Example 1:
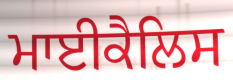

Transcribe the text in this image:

ਮਾਈਕੈਲਿਸ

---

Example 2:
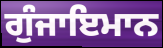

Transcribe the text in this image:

ਗੁੰਜਾਇਮਾਨ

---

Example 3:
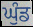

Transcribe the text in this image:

ਘੁੰਡ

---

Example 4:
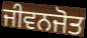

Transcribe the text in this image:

ਜੀਵਨਜੋਤ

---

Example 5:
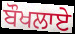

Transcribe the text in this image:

ਬੌਖਲਾਏ